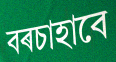
বৰচাহাবে